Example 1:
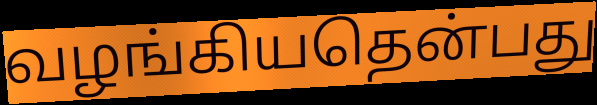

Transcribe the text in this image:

வழங்கியதென்பது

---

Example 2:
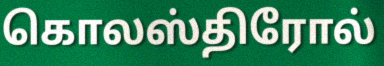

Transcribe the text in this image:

கொலஸ்திரோல்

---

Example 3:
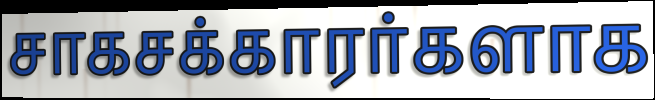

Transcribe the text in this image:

சாகசக்காரர்களாக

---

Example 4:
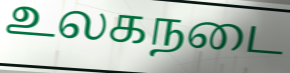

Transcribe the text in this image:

உலகநடை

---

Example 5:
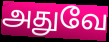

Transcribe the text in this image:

அதுவே